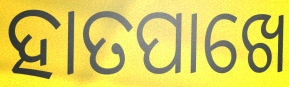
ହାତପାଖେ